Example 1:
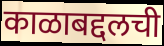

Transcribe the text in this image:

काळाबद्दलची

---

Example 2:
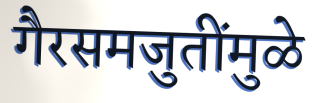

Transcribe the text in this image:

गैरसमजुतींमुळे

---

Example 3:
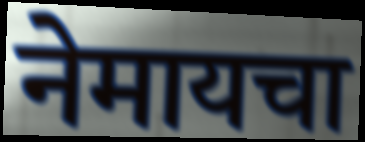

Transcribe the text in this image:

नेमायचा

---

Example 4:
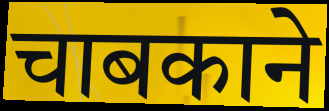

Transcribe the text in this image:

चाबकाने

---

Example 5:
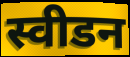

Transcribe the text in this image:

स्वीडन